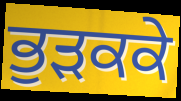
ਭੁੜਕਕੇ